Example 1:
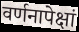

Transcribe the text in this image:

वर्णनापेक्षां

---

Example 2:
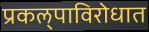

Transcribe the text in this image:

प्रकल्पाविरोधात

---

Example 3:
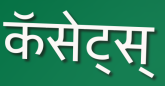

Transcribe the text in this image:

कॅसेट्स्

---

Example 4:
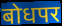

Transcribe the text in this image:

बोधपर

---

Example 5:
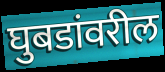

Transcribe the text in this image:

घुबडांवरील